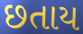
છતાય